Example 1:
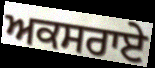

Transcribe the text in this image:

ਅਕਸਰਾਏ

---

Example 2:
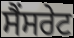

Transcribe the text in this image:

ਸੈਂਸਰੇਟ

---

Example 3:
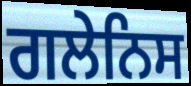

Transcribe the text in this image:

ਗਲੇਨਿਸ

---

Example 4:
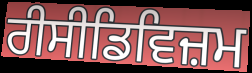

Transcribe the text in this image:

ਰੀਸੀਡਿਵਿਜ਼ਮ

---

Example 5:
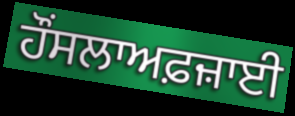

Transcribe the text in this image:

ਹੌਂਸਲਾਅਫ਼ਜ਼ਾਈ